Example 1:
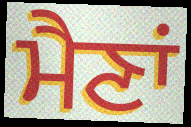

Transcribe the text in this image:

ਮੈਣਾਂ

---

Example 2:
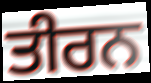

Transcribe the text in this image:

ਤੀਰਨ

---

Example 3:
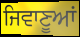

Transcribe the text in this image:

ਜਿਵਾਣੂਆਂ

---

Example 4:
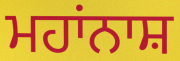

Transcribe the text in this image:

ਮਹਾਂਨਾਸ਼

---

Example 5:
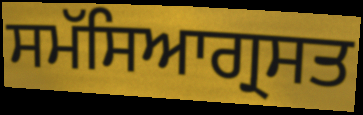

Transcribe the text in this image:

ਸਮੱਸਿਆਗ੍ਰਸਤ